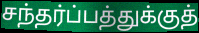
சந்தர்ப்பத்துக்குத்